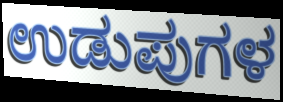
ಉಡುಪುಗಳ